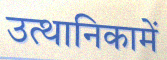
उत्थानिकामें